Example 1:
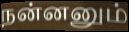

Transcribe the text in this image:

நன்னனும்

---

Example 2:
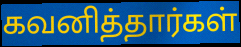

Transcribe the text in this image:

கவனித்தார்கள்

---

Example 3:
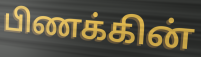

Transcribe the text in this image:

பிணக்கின்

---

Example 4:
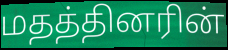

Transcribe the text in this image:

மதத்தினரின்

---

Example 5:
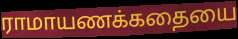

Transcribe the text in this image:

ராமாயணக்கதையை